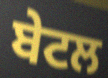
ਬੇਟਲ